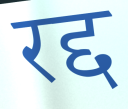
रद्द